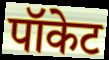
पॉकेट